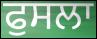
ਫੁਸਲਾ